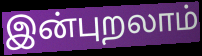
இன்புறலாம்